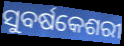
ସୁବର୍ଷକେଶରୀ